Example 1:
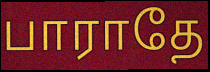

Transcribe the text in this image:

பாராதே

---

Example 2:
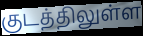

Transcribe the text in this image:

குடத்திலுள்ள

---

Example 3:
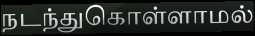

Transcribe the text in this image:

நடந்துகொள்ளாமல்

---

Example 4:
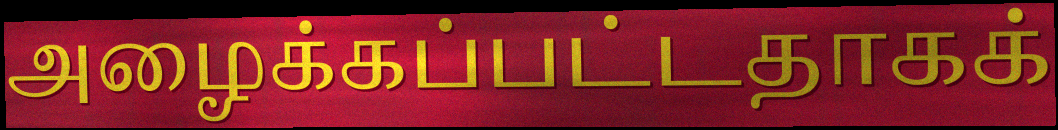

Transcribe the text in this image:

அழைக்கப்பட்டதாகக்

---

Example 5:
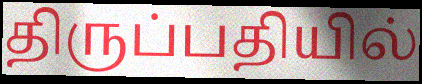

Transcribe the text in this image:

திருப்பதியில்